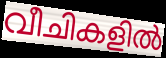
വീചികളിൽ